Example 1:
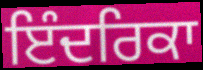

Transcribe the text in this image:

ਇੰਦਰਿਕਾ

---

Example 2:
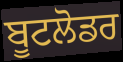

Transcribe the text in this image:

ਬੂਟਲੋਡਰ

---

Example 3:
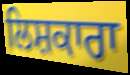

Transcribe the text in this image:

ਲਿਸ਼ਕਾਰਾ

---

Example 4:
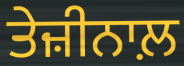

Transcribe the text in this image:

ਤੇਜ਼ੀਨਾਲ਼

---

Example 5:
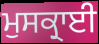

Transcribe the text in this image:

ਮੁਸਕ੍ਰਾਈ